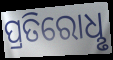
ପ୍ରତିରୋଧୢ